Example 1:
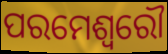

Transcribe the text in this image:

ପରମେଶ୍ଵରୌ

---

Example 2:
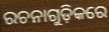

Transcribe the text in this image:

ରଚନାଗୁଡ଼ିକରେ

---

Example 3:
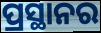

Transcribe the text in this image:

ପ୍ରସ୍ଥାନର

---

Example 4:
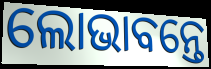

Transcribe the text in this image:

ଲୋଭାବନ୍ତେ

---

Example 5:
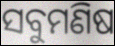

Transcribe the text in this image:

ସବୁମଣିଷ